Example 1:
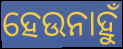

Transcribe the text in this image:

ହେଉନାହୁଁ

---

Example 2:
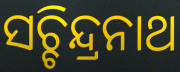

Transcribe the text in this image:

ସଚ୍ଚିନ୍ଦ୍ରନାଥ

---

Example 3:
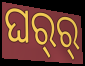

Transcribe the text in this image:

ଘର୍‍ର୍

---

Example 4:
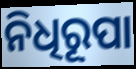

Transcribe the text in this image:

ନିଧିରୂପା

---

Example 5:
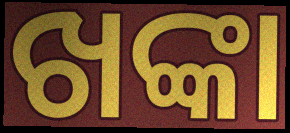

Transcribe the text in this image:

ଖଙ୍କା